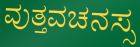
ವುತ್ತವಚನಸ್ಸ